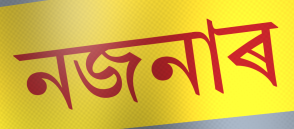
নজনাৰ